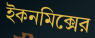
ইকনমিক্সের